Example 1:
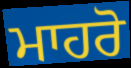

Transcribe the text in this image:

ਮਾਹਰੋ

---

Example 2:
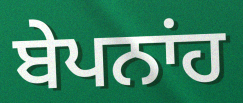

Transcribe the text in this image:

ਬੇਪਨਾਂਹ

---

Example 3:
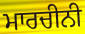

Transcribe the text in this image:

ਮਾਰਚੀਨੀ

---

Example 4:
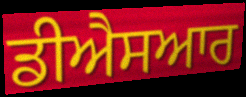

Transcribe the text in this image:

ਡੀਐਸਆਰ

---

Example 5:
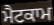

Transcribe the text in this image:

ਮੈਟਕਾਮ